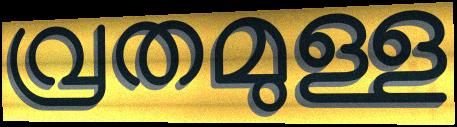
വ്രതമുള്ള